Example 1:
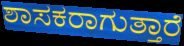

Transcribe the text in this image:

ಶಾಸಕರಾಗುತ್ತಾರೆ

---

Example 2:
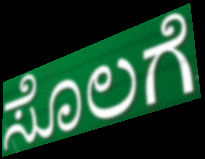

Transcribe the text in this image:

ಸೊಲಗೆ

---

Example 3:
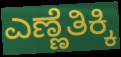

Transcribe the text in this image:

ಎಣ್ಣೆತಿಕ್ಕಿ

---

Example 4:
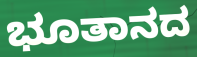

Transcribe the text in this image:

ಭೂತಾನದ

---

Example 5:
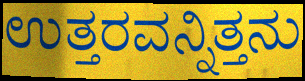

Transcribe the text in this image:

ಉತ್ತರವನ್ನಿತ್ತನು